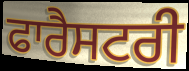
ਫਾਰੈਸਟਰੀ